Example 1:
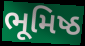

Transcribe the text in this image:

ભૂમિષ્ઠ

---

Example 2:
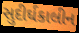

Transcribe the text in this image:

સુદીર્ઘકાલીન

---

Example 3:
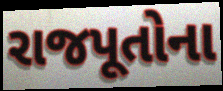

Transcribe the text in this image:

રાજપૂતોના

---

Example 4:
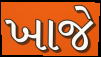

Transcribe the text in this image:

ખાજે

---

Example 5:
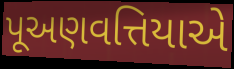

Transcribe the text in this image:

પૂઅણવત્તિયાએ